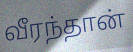
வீரந்தான்